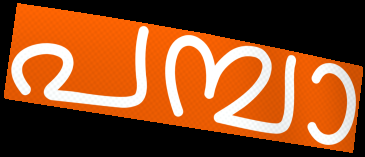
പമ്പാ